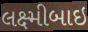
લક્ષ્મીબાઇ